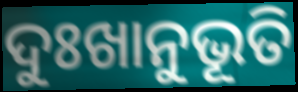
ଦୁଃଖାନୁଭୂତି